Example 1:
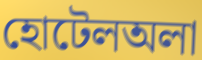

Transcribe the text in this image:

হোটেলঅলা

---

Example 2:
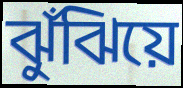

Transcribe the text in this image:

ঝুঁঝিয়ে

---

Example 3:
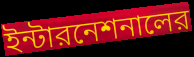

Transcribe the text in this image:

ইন্টারনেশনালের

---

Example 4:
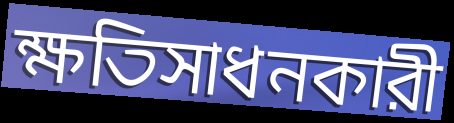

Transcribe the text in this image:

ক্ষতিসাধনকারী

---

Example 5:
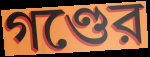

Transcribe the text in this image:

গণ্ডের